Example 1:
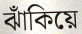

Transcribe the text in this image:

ঝাঁকিয়ে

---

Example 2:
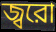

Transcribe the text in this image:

জ্বরো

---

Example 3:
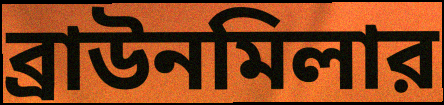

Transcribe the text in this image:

ব্রাউনমিলার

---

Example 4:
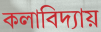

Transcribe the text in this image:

কলাবিদ্যায়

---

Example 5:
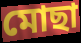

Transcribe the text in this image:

মোছা